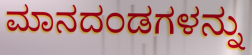
ಮಾನದಂಡಗಳನ್ನು